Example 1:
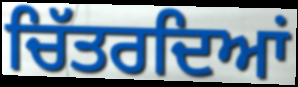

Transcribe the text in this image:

ਚਿੱਤਰਦਿਆਂ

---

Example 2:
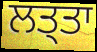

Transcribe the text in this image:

ਲਤ੍ਤਾ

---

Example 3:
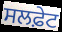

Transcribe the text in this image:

ਸਲਫ਼ੇਟ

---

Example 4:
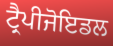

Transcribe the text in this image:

ਟ੍ਰੈਪੀਜੋਇਡਲ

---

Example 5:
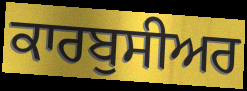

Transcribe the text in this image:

ਕਾਰਬੁਸੀਅਰ